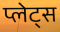
प्‍लेट्स